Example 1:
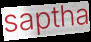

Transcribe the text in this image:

saptha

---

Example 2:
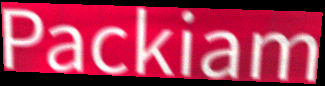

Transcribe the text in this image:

Packiam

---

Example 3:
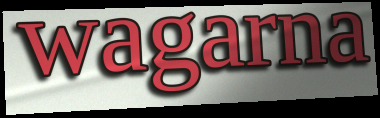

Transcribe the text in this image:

wagarna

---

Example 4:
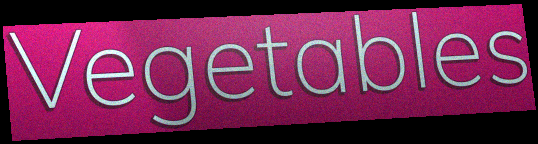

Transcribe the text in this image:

Vegetables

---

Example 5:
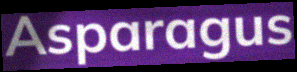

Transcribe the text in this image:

Asparagus